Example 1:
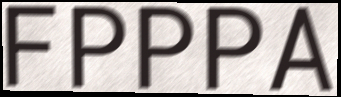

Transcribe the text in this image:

FPPPA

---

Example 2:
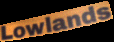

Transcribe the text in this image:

Lowlands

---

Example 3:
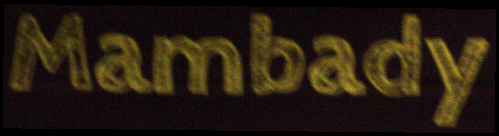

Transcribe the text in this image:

Mambady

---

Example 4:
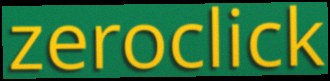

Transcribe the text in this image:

zeroclick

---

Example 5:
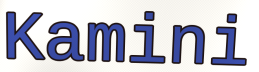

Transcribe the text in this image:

Kamini